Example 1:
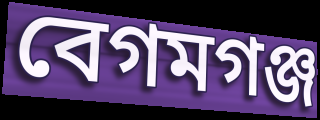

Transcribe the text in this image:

বেগমগঞ্জ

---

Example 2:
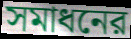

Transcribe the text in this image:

সমাধনের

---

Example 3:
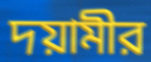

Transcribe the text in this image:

দয়ামীর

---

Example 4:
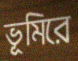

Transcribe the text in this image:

ভূমিরে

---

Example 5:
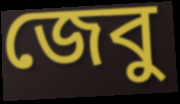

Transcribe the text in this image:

জেবু